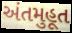
અંતમુહૂત